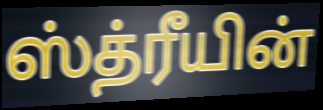
ஸ்த்ரீயின்